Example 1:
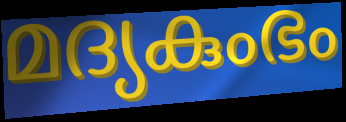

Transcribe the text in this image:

മദ്യകുംഭം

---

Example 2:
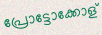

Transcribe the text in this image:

പ്രോട്ടോക്കോള്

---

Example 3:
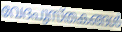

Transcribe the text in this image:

വേദപുസ്തകങ്ങൾ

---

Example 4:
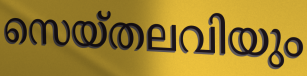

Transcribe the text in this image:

സെയ്തലവിയും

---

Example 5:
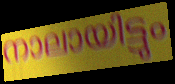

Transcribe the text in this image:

നാലായിട്ടും